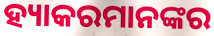
ହ୍ୟାକରମାନଙ୍କର